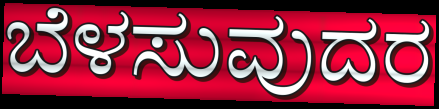
ಬೆಳಸುವುದರ